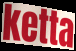
ketta